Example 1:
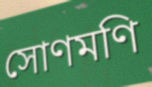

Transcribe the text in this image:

সোণমণি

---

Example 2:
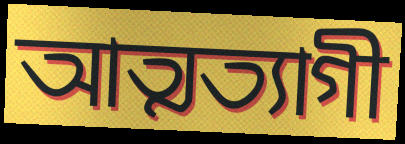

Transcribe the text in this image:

আত্মত্যাগী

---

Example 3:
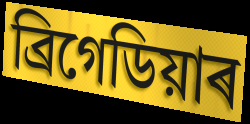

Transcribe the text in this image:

ব্ৰিগেডিয়াৰ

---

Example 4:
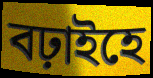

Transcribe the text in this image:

বঢ়াইহে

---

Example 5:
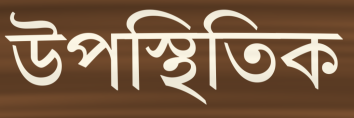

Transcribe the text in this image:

উপস্থিতিক